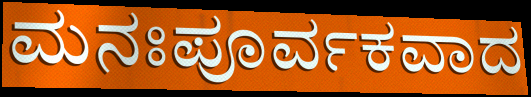
ಮನಃಪೂರ್ವಕವಾದ